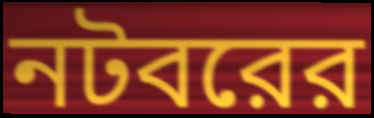
নটবরের